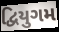
દ્વિયુગમ